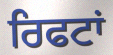
ਰਿਫਟਾਂ